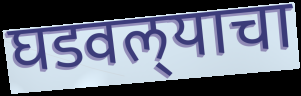
घडवल्याचा